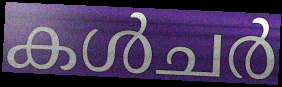
കൾചർ